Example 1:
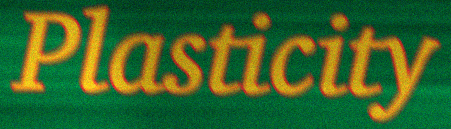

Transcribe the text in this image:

Plasticity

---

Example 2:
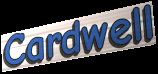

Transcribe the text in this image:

Cardwell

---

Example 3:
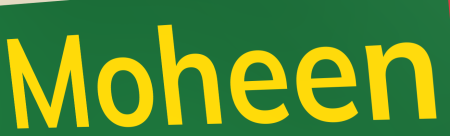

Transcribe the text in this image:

Moheen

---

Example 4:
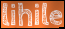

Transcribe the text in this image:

lihile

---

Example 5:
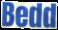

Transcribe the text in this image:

Bedd